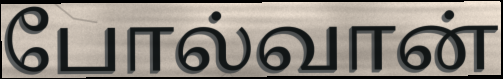
போல்வான்